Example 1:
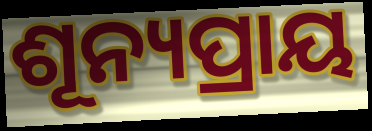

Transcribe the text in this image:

ଶୂନ୍ୟପ୍ରାୟ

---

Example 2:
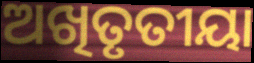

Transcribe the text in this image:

ଅଖିତୃତୀୟା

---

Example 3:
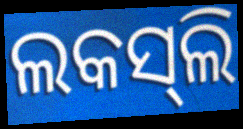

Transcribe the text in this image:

ଲକସ୍‍ଲି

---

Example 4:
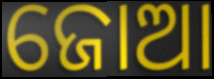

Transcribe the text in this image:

ଜୋଆ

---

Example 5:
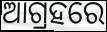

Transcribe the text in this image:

ଆଗ୍ରହରେ